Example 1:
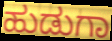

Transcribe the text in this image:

ಹುಡುಗಾ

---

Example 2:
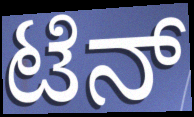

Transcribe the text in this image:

ಟೆನ್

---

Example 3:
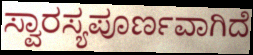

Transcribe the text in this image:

ಸ್ವಾರಸ್ಯಪೂರ್ಣವಾಗಿದೆ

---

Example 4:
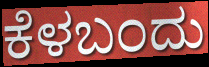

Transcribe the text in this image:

ಕೆಳಬಂದು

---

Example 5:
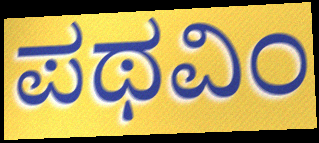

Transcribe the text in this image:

ಪಥವಿಂ